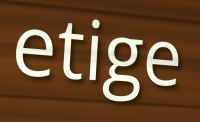
etige